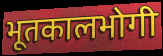
भूतकालभोगी